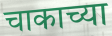
चाकाच्या